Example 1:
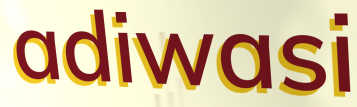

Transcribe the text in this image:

adiwasi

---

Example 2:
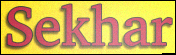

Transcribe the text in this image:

Sekhar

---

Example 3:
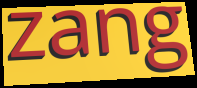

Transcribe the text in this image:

zang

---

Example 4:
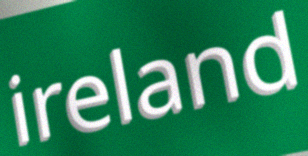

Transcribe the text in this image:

ireland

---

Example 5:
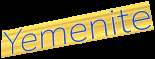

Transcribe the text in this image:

Yemenite